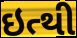
ઇત્થી